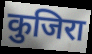
कुजिरा